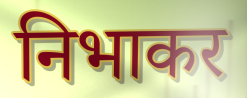
निभाकर